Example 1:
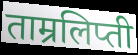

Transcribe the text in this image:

ताम्रलिप्ती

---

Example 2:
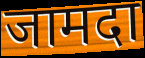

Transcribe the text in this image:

जामदा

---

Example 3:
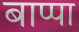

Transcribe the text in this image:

बाप्पा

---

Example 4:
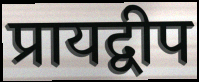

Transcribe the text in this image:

प्रायद्वीप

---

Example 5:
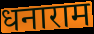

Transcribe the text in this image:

धनाराम